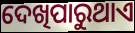
ଦେଖିପାରୁଥାଏ